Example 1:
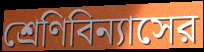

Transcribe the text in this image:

শ্রেণিবিন্যাসের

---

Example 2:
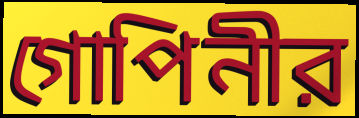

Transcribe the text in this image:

গোপিনীর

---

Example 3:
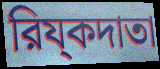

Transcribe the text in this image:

রিয্কদাতা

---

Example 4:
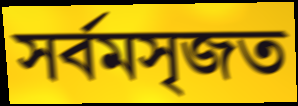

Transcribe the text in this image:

সর্বমসৃজত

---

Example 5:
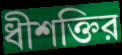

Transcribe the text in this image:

ধীশক্তির